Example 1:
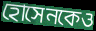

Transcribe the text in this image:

হোসেনকেও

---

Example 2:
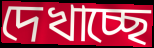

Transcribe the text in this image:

দেখাচ্ছে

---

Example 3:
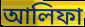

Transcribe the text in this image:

আলিফা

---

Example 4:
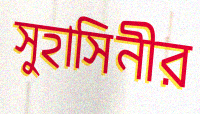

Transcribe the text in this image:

সুহাসিনীর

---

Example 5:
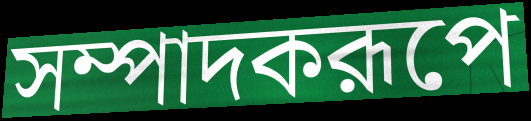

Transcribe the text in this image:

সম্পাদকরূপে